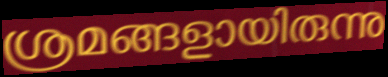
ശ്രമങ്ങളായിരുന്നു